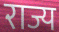
राज्य